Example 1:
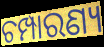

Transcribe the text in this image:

ଚମ୍ପାରଣ୍ୟ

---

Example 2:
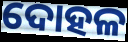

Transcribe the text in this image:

ଦୋହଳ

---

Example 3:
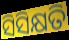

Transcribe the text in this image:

ସିସିକ୍ଷତି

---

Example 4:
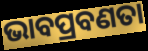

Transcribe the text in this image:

ଭାବପ୍ରବଣତା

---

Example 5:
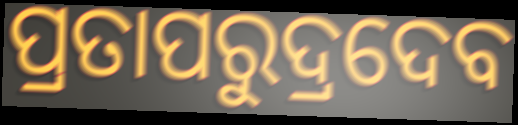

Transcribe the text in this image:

ପ୍ରତାପରୁଦ୍ରଦେବ